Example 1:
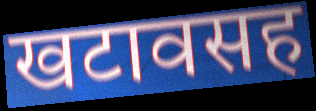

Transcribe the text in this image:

खटावसह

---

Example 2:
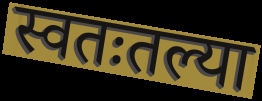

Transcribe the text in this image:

स्वतःतल्या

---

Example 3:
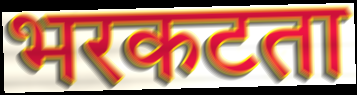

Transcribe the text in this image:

भरकटता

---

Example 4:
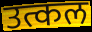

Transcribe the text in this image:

उत्कल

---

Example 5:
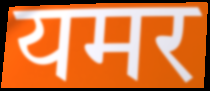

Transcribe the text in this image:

यमर